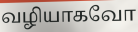
வழியாகவோ